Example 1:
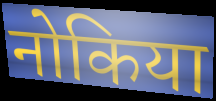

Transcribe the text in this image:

नोकिया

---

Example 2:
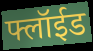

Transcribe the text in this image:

फ्लॉईड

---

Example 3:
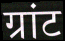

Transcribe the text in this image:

ग्रांट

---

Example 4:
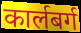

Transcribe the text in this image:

कार्लबर्ग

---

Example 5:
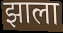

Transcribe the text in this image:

झाला